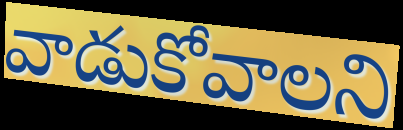
వాడుకోవాలని